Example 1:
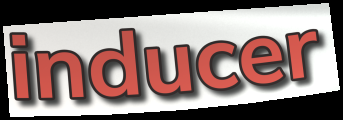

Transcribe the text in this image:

inducer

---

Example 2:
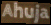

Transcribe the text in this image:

Ahuja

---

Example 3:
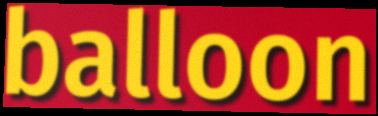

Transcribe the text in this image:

balloon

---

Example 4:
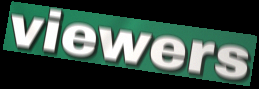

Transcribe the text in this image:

viewers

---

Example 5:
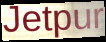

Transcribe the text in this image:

Jetpur